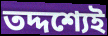
তদ্দশ্যেই